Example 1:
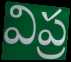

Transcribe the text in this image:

విప్ర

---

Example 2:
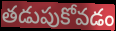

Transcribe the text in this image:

తడుపుకోవడం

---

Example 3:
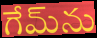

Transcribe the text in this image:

గేమ్‌ను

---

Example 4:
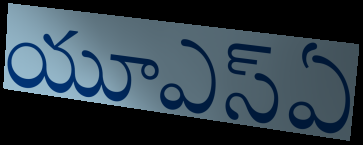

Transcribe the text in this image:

యూఎస్ఏ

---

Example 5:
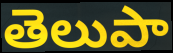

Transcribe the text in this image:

తెలుపా